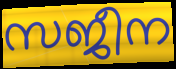
സജീന